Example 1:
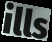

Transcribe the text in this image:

ills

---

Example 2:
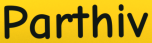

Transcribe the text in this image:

Parthiv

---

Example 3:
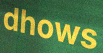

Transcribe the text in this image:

dhows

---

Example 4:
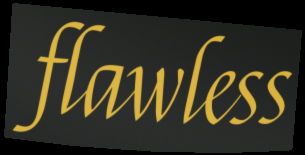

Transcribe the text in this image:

flawless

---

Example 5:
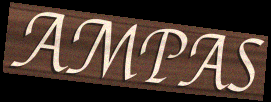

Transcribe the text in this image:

AMPAS